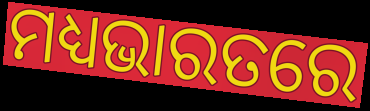
ମଧ୍ୟଭାରତରେ